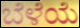
ಬೆಳೆಯೆ